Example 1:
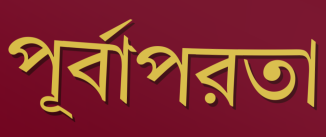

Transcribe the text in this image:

পূর্বাপরতা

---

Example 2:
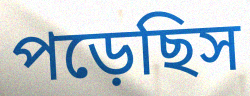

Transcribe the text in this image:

পড়েছিস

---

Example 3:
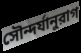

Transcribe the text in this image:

সৌন্দর্যানুরাগ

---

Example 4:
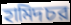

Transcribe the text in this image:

হামিদচর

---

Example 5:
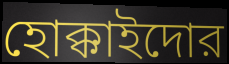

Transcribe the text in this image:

হোক্কাইদোর